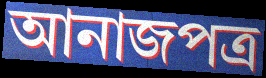
আনাজপত্র